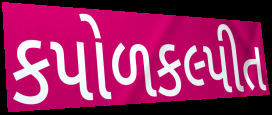
કપોળકલ્પીત